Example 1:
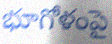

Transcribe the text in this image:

భూగోళంపై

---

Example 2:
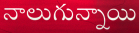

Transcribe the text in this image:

నాలుగున్నాయి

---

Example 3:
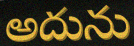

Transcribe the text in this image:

అదును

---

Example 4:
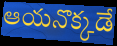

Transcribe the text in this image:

ఆయనొక్కడే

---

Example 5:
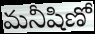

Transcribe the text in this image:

మనీషిణో